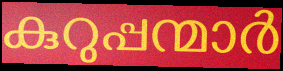
കുറുപ്പന്മാർ